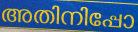
അതിനിപ്പോ